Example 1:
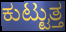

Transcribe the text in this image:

ಕುಟ್ಟುತ್ತ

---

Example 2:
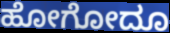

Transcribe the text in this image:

ಹೋಗೋದೂ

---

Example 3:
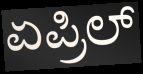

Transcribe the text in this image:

ಏಪ್ರಿಲ್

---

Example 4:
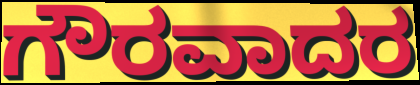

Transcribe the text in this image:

ಗೌರವಾದರ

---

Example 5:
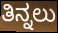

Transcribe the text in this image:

ತಿನ್ನಲು